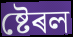
ষ্টেৰল